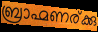
ബ്രാഹ്മണര്ക്കു